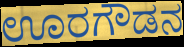
ಊರಗೌಡನ